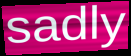
sadly